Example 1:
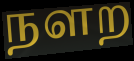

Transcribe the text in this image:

நளற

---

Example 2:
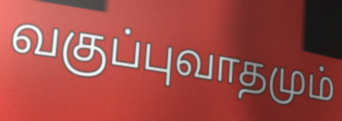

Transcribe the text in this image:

வகுப்புவாதமும்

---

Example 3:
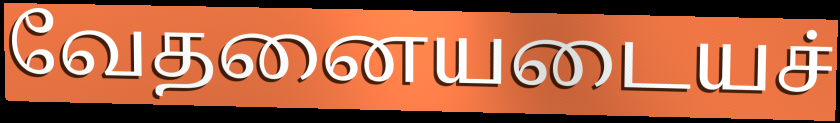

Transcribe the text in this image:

வேதனையடையச்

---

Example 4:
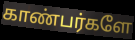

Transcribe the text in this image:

காண்பர்களே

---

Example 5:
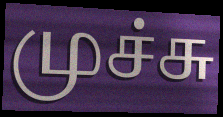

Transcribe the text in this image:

முச்சு